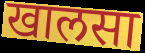
खालसा